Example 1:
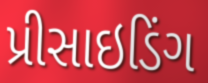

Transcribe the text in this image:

પ્રીસાઇડિંગ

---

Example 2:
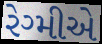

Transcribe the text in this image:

રેગ્મીએ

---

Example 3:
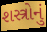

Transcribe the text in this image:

શસ્ત્રોનું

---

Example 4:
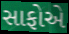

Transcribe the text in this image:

સાફોએ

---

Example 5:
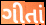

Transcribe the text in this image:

ગીતાં